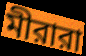
মীরারা